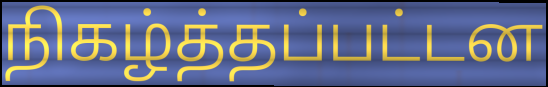
நிகழ்த்தப்பட்டன